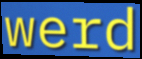
werd